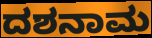
ದಶನಾಮ